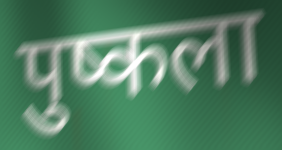
पुष्कला